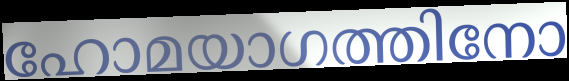
ഹോമയാഗത്തിനോ